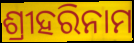
ଶ୍ରୀହରିନାମ